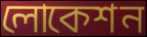
লোকেশন